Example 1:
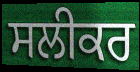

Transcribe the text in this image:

ਸਲੀਕਰ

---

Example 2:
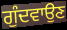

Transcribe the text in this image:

ਗੁੰਦਵਾਉਣ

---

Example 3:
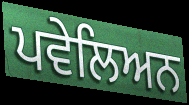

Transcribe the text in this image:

ਪਵੇਲਿਅਨ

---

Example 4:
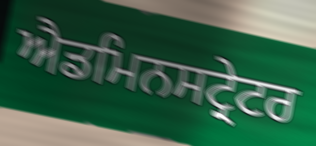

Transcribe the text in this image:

ਐਡਮਿਨਸਟ੍ਰੇਟਰ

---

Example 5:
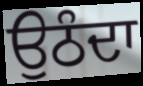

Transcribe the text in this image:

ਉਠੰਦਾ